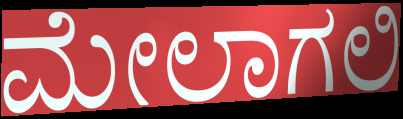
ಮೇಲಾಗಲಿ